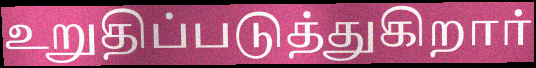
உறுதிப்படுத்துகிறார்